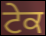
ਟੇਕ